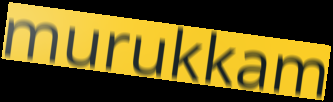
murukkam